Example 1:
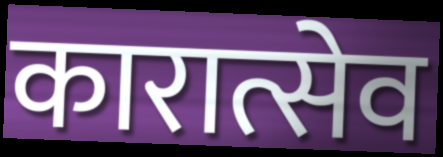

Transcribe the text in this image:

कारात्सेव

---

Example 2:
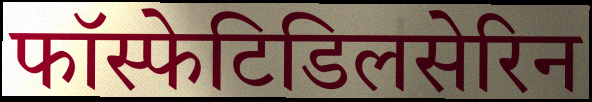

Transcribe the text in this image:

फॉस्फेटिडिलसेरिन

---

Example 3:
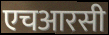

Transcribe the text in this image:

एचआरसी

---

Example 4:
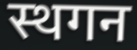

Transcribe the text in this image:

स्थगन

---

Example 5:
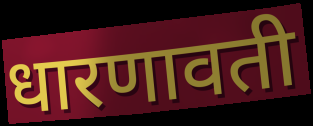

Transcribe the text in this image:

धारणावती